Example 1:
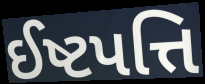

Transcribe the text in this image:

ઈષ્ટપત્તિ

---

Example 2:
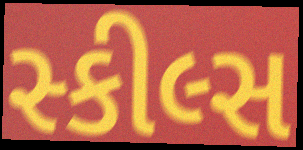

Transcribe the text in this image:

સ્કીલ્સ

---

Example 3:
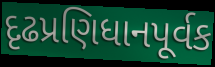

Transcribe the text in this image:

દૃઢપ્રણિધાનપૂર્વક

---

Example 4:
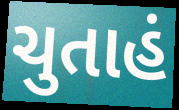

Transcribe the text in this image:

ચુતાહં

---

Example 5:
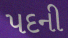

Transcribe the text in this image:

પદની